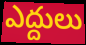
ఎద్దులు